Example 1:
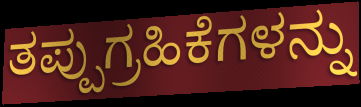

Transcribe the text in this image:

ತಪ್ಪುಗ್ರಹಿಕೆಗಳನ್ನು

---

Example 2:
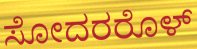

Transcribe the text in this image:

ಸೋದರರೊಳ್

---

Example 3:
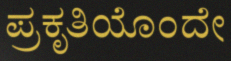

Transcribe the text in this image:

ಪ್ರಕೃತಿಯೊಂದೇ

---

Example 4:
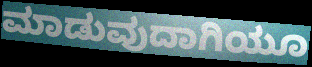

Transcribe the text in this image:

ಮಾಡುವುದಾಗಿಯೂ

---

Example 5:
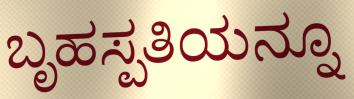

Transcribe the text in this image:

ಬೃಹಸ್ಪತಿಯನ್ನೂ